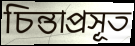
চিন্তাপ্রসূত